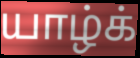
யாழ்க்